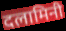
दलामिनी